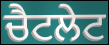
ਚੈਟਲੇਟ